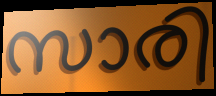
സാരി